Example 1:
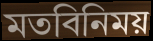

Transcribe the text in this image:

মতবিনিময়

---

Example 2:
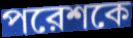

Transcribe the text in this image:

পরেশকে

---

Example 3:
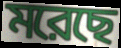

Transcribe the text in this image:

মরেছে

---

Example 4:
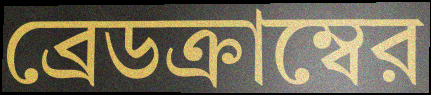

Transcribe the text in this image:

ব্রেডক্রাম্বের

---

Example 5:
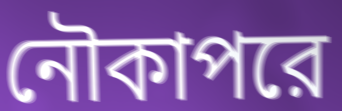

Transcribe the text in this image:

নৌকাপরে